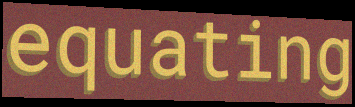
equating